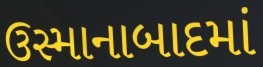
ઉસ્માનાબાદમાં